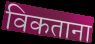
विकताना